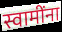
स्वामींना